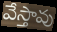
వేస్తావు